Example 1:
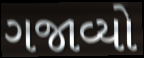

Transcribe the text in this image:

ગજાવ્યો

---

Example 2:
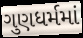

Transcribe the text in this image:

ગુણધર્મમાં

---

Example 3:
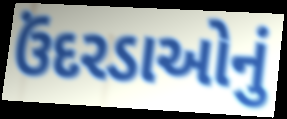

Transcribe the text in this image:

ઉંદરડાઓનું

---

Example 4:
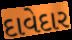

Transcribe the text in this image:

દાવેદાર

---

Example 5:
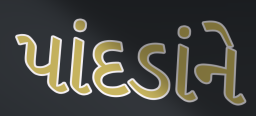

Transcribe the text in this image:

પાંદડાંને